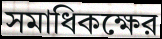
সমাধিকক্ষের